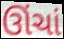
ઊંચાં